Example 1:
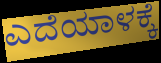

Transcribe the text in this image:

ಎದೆಯಾಳಕ್ಕೆ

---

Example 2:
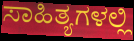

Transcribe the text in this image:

ಸಾಹಿತ್ಯಗಳಲ್ಲಿ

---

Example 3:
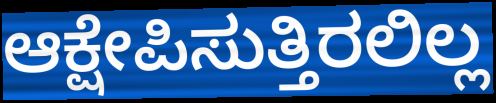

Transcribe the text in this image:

ಆಕ್ಷೇಪಿಸುತ್ತಿರಲಿಲ್ಲ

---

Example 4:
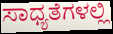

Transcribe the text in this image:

ಸಾಧ್ಯತೆಗಳಲ್ಲಿ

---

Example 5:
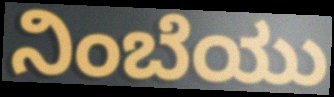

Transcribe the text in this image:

ನಿಂಬೆಯು